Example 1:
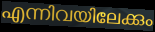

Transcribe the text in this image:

എന്നിവയിലേക്കും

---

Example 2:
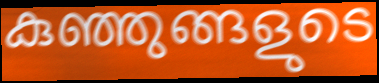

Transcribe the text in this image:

കുഞ്ഞുങ്ങളുടെ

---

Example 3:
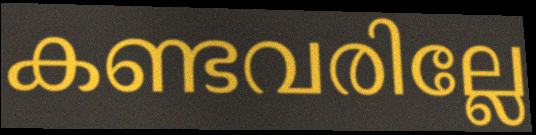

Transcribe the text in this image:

കണ്ടവരില്ലേ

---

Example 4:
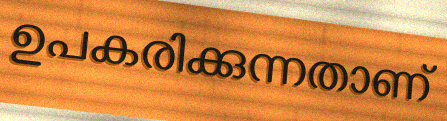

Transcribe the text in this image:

ഉപകരിക്കുന്നതാണ്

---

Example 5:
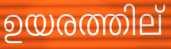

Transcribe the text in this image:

ഉയരത്തില്